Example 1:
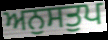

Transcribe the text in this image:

ਅਨੁਸਤੁਪ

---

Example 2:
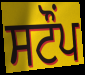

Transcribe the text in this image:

ਸਟੌਂਪ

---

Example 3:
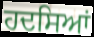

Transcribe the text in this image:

ਹਦਸਿਆਂ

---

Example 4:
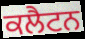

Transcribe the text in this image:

ਕਲੈਟਨ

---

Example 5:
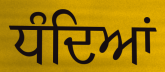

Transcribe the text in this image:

ਧੰਦਿਆਂ